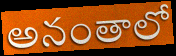
అనంతాలో